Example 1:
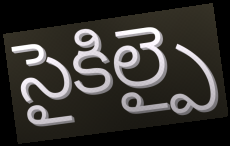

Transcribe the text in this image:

సైకిల్పై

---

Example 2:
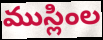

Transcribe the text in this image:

ముస్లింల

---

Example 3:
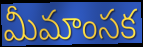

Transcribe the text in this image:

మీమాంసక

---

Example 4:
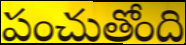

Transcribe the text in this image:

పంచుతోంది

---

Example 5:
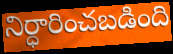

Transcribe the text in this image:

నిర్ధారించబడింది